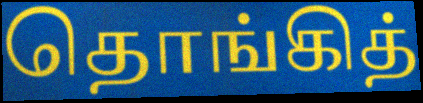
தொங்கித்